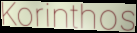
Korinthos